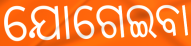
ଯୋଗେଇବା